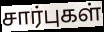
சார்புகள்